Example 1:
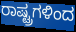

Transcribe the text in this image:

ರಾಷ್ಟ್ರಗಳಿಂದ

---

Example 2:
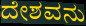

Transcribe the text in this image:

ದೇಶವನು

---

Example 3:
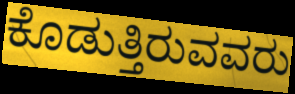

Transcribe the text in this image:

ಕೊಡುತ್ತಿರುವವರು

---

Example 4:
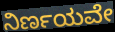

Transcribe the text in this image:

ನಿರ್ಣಯವೇ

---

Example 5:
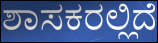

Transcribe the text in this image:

ಶಾಸಕರಲ್ಲಿದೆ